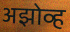
अझोव्ह